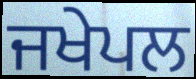
ਜਖੇਪਲ